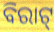
ବିରାଟ୍